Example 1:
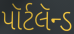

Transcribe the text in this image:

પૉર્ટલૅન્ડ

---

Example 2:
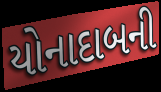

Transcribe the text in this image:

યોનાદાબની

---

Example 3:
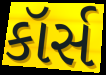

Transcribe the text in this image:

કૉર્સ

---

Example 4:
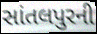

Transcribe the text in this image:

સાંતલપુરની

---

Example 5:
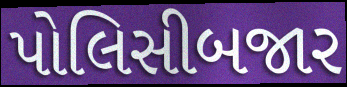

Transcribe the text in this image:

પોલિસીબજાર